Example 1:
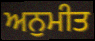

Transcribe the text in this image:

ਅਨੁਮੀਤ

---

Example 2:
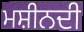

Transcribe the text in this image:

ਮਸ਼ੀਨਦੀ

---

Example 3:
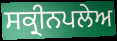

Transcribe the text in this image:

ਸਕ੍ਰੀਨਪਲੇਅ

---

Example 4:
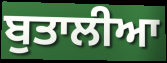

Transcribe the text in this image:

ਬੁਤਾਲੀਆ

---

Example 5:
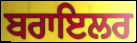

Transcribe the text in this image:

ਬਰਾਇਲਰ